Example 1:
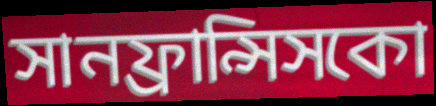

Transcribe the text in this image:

সানফ্রান্সিসকো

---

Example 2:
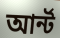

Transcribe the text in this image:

আর্ন্ট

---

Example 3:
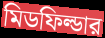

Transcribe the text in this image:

মিডফিল্ডার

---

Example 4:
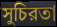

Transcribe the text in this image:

সুচিরতা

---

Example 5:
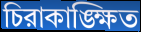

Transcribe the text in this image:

চিরাকাঙ্ক্ষিত